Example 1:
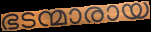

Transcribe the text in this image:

ഭടന്മാരായ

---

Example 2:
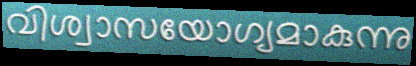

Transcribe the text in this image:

വിശ്വാസയോഗ്യമാകുന്നു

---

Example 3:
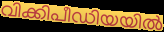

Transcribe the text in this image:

വിക്കിപീഡിയയിൽ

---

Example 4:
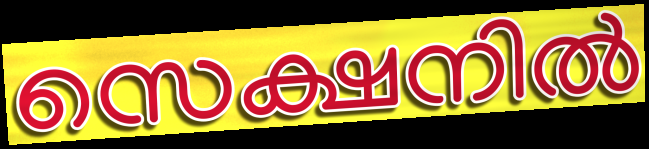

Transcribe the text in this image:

സെക്ഷനിൽ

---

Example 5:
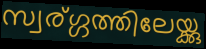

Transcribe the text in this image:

സ്വര്ഗ്ഗത്തിലേയ്ക്കു